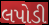
લપોડી